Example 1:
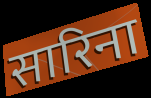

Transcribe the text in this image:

सारिना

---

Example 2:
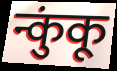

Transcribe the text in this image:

न्कुंकू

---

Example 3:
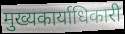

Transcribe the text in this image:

मुख्यकार्याधिकारी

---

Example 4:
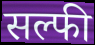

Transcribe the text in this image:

सल्फी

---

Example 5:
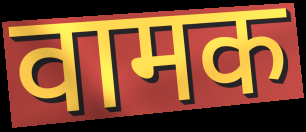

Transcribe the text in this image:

वामक